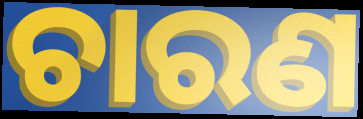
ଚାରଣ